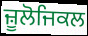
ਜ਼ੂਲੋਜਿਕਲ